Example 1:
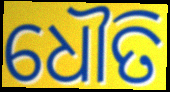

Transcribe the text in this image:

ଧୌତି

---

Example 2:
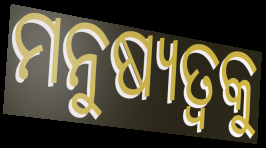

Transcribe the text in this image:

ମନୁଷ୍ୟତ୍ୱକୁ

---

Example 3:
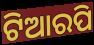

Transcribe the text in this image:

ଟିଆରପି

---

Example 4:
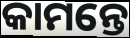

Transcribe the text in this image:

କାମନ୍ତେ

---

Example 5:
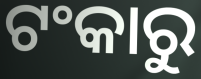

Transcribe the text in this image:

ଟଂକାରୁ